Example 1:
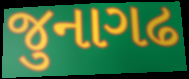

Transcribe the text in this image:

જુનાગઢ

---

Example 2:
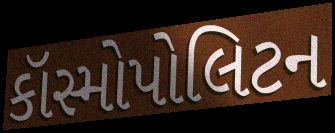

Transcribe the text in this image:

કૉસ્મોપોલિટન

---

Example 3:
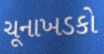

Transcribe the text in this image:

ચૂનાખડકો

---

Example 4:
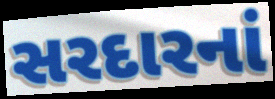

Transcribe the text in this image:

સરદારનાં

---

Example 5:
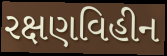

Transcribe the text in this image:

રક્ષણવિહીન